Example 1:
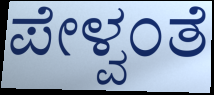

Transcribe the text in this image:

ಪೇಳ್ವಂತೆ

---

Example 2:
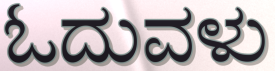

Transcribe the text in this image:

ಓದುವಳು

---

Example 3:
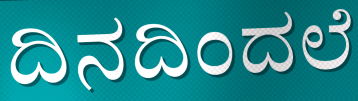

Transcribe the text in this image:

ದಿನದಿಂದಲೆ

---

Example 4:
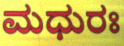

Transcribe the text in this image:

ಮಧುರಃ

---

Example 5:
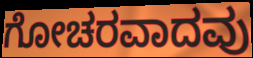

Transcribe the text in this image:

ಗೋಚರವಾದವು